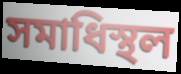
সমাধিস্থল